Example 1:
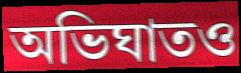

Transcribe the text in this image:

অভিঘাতও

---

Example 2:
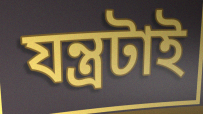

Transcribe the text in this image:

যন্ত্রটাই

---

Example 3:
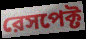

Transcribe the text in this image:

রেসপেক্ট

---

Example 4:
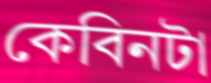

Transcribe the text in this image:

কেবিনটা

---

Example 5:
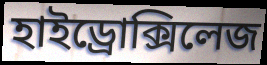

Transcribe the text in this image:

হাইড্রোক্সিলেজ